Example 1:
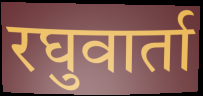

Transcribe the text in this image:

रघुवार्ता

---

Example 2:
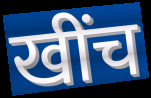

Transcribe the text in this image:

खींच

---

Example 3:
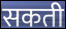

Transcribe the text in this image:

सकती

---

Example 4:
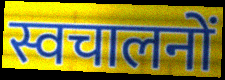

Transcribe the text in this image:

स्वचालनों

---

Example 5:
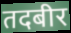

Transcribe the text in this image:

तदबीर